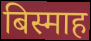
बिस्माह